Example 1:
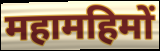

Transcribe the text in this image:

महामहिमों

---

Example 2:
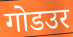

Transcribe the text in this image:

गोडउर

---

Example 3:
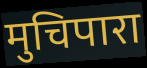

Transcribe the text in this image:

मुचिपारा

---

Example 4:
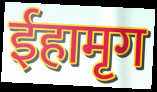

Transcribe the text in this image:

ईहामृग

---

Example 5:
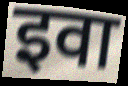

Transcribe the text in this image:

इवा